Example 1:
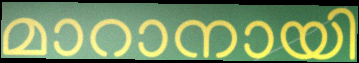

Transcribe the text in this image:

മാറാനായി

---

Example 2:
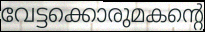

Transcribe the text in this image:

വേട്ടക്കൊരുമകന്റെ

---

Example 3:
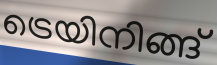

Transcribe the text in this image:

ട്രെയിനിങ്ങ്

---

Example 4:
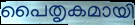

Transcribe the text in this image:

പൈതൃകമായി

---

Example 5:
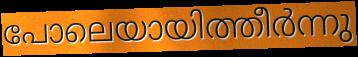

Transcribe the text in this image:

പോലെയായിത്തീർന്നു